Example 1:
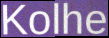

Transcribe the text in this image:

Kolhe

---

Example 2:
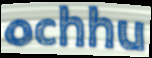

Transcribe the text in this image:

ochhu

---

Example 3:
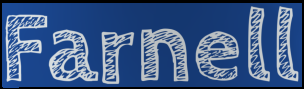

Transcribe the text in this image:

Farnell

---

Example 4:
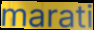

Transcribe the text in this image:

marati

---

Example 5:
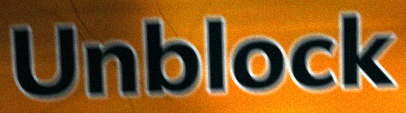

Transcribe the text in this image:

Unblock